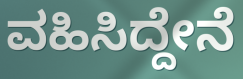
ವಹಿಸಿದ್ದೇನೆ